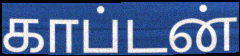
காப்டன்